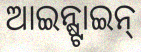
ଆଇନ୍ଷ୍ଟାଇନ୍